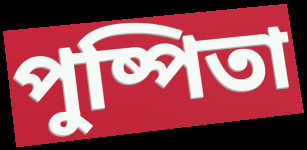
পুষ্পিতা